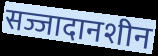
सज्जादानशीन